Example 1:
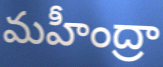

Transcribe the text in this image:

మహీంద్రా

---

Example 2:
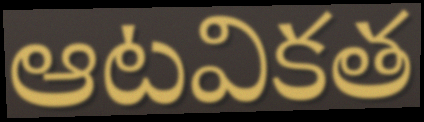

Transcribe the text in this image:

ఆటవికత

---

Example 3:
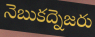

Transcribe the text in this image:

నెబుకద్నెజరు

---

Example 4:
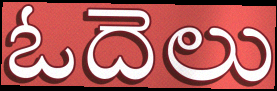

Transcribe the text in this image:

ఓదెలు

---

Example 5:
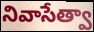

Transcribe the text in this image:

నివాసేత్వా